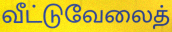
வீட்டுவேலைத்